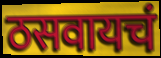
ठसवायचं